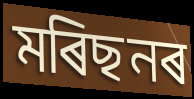
মৰিছনৰ